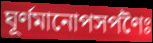
ঘূর্ণমানোপসর্পণৈঃ